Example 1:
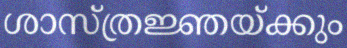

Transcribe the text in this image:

ശാസ്ത്രജ്ഞയ്ക്കും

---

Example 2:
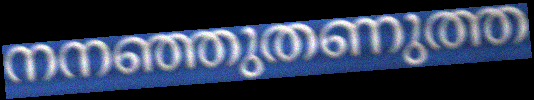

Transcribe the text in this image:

നനഞ്ഞുതണുത്ത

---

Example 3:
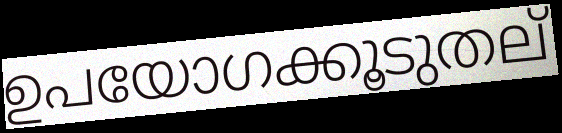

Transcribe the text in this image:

ഉപയോഗക്കൂടുതല്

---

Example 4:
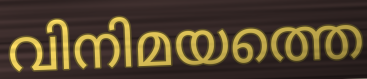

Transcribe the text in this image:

വിനിമയത്തെ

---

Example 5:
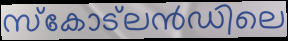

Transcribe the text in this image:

സ്കോട്ലൻഡിലെ